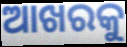
ଆଖରକୁ